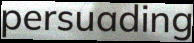
persuading